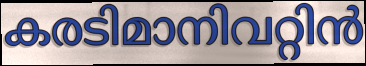
കരടിമാനിവറ്റിൻ